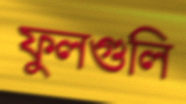
ফুলগুলি